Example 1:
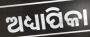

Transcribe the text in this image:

ଅଧ୍ୟାପିକା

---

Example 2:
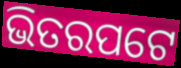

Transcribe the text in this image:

ଭିତରପଟେ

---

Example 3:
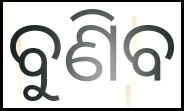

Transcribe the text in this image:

ବୁଣିବ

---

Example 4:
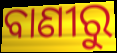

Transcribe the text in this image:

ବାଣୀରୁ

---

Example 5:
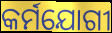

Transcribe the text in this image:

କର୍ମଯୋଗୀ